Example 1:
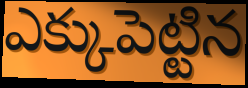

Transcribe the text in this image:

ఎక్కుపెట్టిన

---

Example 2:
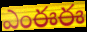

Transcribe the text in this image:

ఎంఈఈ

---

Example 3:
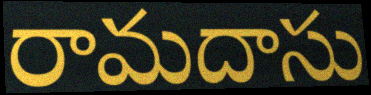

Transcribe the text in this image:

రామదాసు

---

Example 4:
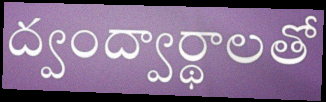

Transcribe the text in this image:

ద్వంద్వార్థాలతో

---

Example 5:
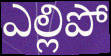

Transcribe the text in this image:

ఎల్లిపో